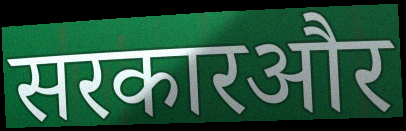
सरकारऔर